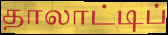
தாலாட்டிப்